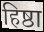
हिष्ठा